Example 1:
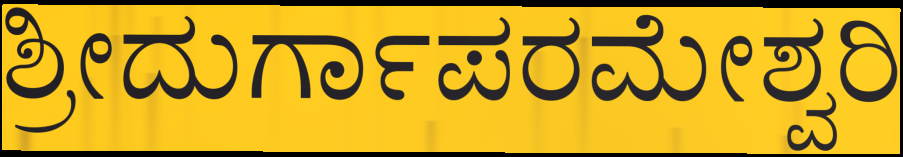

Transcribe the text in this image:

ಶ್ರೀದುರ್ಗಾಪರಮೇಶ್ವರಿ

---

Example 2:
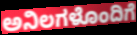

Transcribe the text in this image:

ಅನಿಲಗಳೊಂದಿಗೆ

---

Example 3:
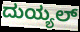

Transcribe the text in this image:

ದುಯ್ಯಲ್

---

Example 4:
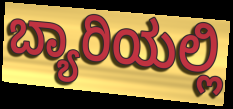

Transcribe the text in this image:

ಬ್ಯಾರಿಯಲ್ಲಿ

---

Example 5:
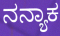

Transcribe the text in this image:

ನನ್ಯಾಕ